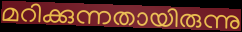
മറിക്കുന്നതായിരുന്നു